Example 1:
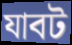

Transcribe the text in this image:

যাবট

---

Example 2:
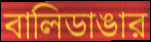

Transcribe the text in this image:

বালিডাঙার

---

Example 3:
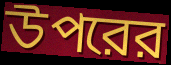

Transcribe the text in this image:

উপরের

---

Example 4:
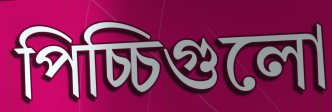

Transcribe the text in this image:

পিচ্চিগুলো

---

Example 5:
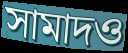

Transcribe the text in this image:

সামাদও